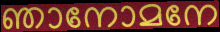
ഞാനോമനേ